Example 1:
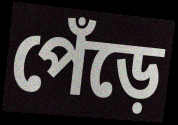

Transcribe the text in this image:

পেঁড়ে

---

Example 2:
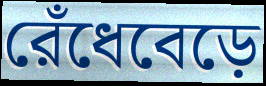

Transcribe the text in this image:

রেঁধেবেড়ে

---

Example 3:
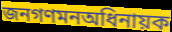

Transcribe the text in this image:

জনগণমনঅধিনায়ক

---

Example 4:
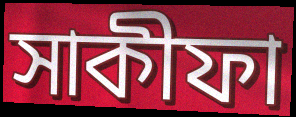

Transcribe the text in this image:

সাকীফা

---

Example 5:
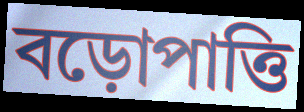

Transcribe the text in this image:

বড়োপাত্তি